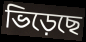
ভিড়েছে